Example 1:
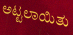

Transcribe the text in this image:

ಅಟ್ಟಲಾಯಿತು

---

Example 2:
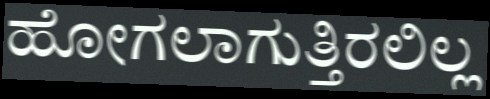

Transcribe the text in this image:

ಹೋಗಲಾಗುತ್ತಿರಲಿಲ್ಲ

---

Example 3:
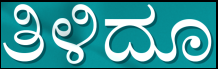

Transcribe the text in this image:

ತಿಳಿದೂ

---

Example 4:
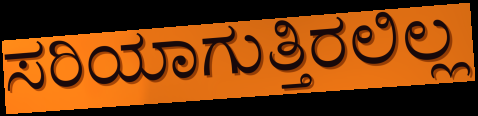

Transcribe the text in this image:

ಸರಿಯಾಗುತ್ತಿರಲಿಲ್ಲ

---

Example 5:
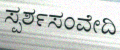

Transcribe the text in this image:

ಸ್ಪರ್ಶಸಂವೇದಿ